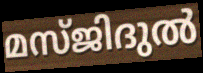
മസ്ജിദുൽ